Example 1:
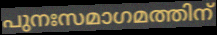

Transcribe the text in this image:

പുനഃസമാഗമത്തിന്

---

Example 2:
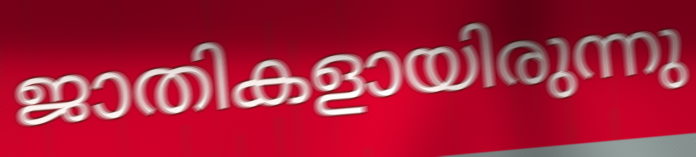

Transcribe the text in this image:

ജാതികളായിരുന്നു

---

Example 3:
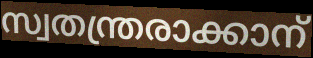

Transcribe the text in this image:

സ്വതന്ത്രരാക്കാന്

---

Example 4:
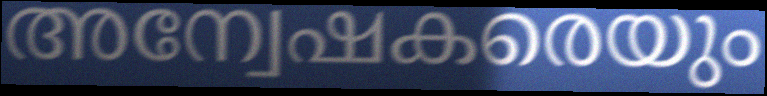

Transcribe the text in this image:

അന്വേഷകരെയും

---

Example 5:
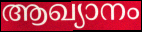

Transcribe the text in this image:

ആഖ്യാനം